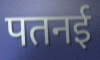
पतनई